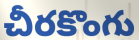
చీరకొంగు